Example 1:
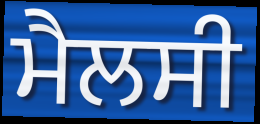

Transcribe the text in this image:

ਮੈਲਸੀ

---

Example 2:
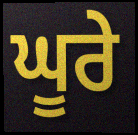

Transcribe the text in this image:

ਘੂਰੇ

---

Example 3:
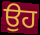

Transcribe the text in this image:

ਉੁਹ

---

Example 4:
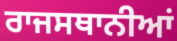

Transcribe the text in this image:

ਰਾਜਸਥਾਨੀਆਂ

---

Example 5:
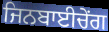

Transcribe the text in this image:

ਜਿਨਬਾਈਚੇਂਗ